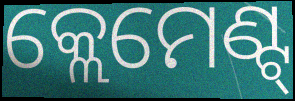
କ୍ଲେମେଣ୍ଟ୍